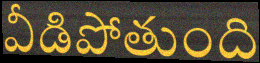
వీడిపోతుంది